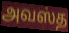
அவஸ்த